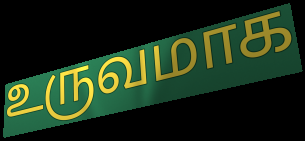
உருவமாக